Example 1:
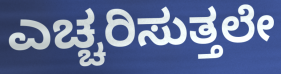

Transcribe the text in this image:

ಎಚ್ಚರಿಸುತ್ತಲೇ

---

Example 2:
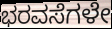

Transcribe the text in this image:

ಭರವಸೆಗಳೇ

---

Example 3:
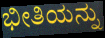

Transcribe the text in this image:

ಭೀತಿಯನ್ನು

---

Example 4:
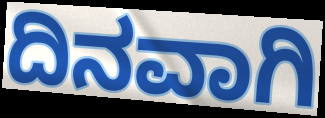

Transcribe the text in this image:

ದಿನವಾಗಿ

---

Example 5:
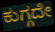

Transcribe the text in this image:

ಕುಗ್ಗದೇ